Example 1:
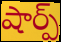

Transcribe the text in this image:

షార్ప్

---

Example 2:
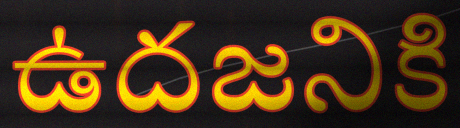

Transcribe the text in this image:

ఉదజనికి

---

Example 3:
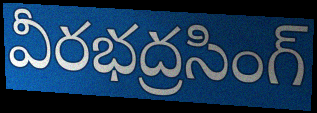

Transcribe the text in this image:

వీరభద్రసింగ్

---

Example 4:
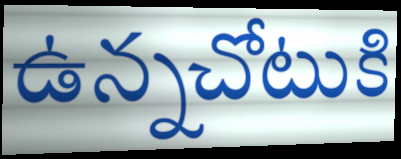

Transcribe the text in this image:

ఉన్నచోటుకి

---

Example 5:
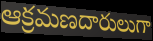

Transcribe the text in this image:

ఆక్రమణదారులుగా